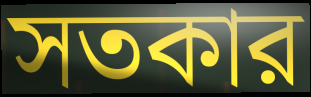
সতকার